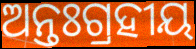
ଅନ୍ତଃଗ୍ରହୀୟ